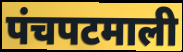
पंचपटमाली